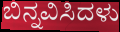
ಬಿನ್ನವಿಸಿದಳು